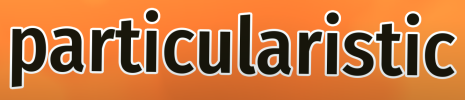
particularistic